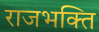
राजभक्ति